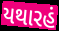
યથારહં